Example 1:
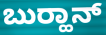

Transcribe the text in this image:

ಬುರ‍್ಹಾನ್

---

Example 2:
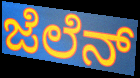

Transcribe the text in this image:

ಜೆಲೆನ್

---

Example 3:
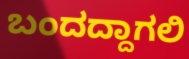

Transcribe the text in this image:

ಬಂದದ್ದಾಗಲಿ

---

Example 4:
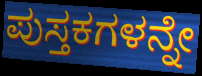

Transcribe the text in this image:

ಪುಸ್ತಕಗಳನ್ನೇ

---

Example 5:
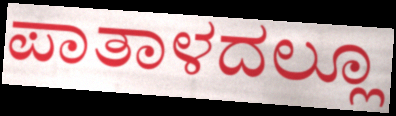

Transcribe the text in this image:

ಪಾತಾಳದಲ್ಲೂ